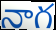
నాగ